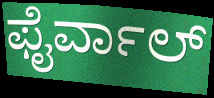
ಫೈರ್ವಾಲ್